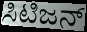
ಸಿಟಿಜನ್